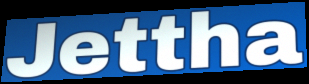
Jettha